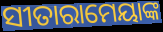
ସୀତାରାମେୟାଙ୍କ